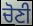
ਚੋਣੀ